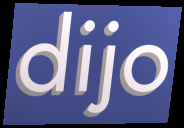
dijo